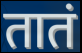
तातं